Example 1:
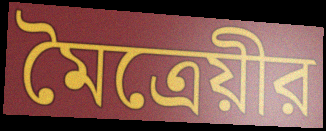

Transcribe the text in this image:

মৈত্রেয়ীর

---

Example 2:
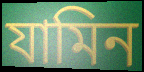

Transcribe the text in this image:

যামিন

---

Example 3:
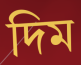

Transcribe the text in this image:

দিম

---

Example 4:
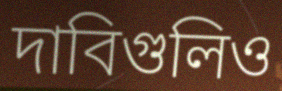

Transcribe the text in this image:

দাবিগুলিও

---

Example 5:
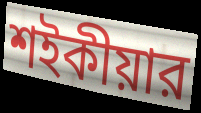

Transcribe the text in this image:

শইকীয়ার